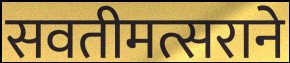
सवतीमत्सराने